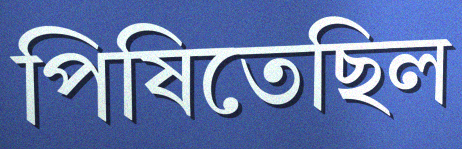
পিষিতেছিল